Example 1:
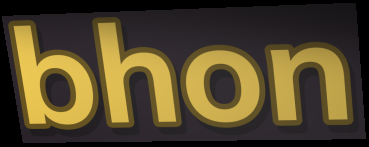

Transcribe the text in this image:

bhon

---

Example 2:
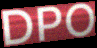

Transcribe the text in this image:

DPO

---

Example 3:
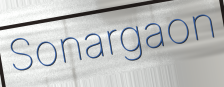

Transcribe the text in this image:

Sonargaon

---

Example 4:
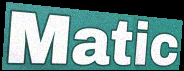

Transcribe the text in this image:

Matic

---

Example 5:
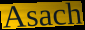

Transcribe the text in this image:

Asach